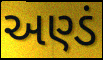
અણ્ડં